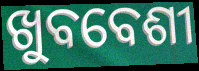
ଖୁବବେଶୀ